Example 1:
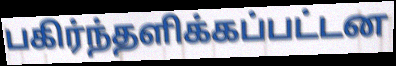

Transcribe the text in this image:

பகிர்ந்தளிக்கப்பட்டன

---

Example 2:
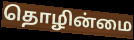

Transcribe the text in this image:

தொழின்மை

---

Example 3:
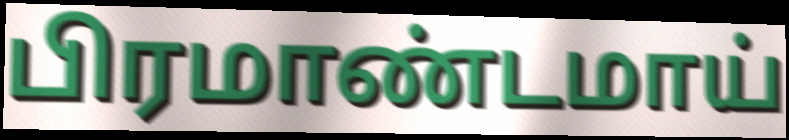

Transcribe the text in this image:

பிரமாண்டமாய்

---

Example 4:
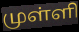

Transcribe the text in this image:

முள்ளி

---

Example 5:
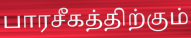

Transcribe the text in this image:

பாரசீகத்திற்கும்